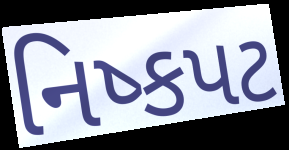
નિષ્કપટ